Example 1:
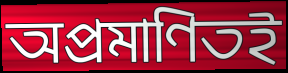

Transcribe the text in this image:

অপ্রমাণিতই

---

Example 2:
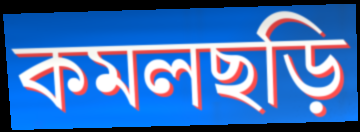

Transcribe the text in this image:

কমলছড়ি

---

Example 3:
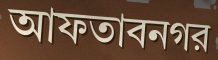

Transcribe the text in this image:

আফতাবনগর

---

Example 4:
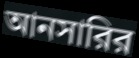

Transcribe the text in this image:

আনসারির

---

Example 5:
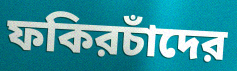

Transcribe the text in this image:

ফকিরচাঁদের